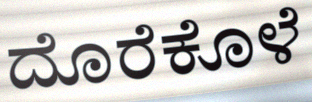
ದೊರೆಕೊಳೆ